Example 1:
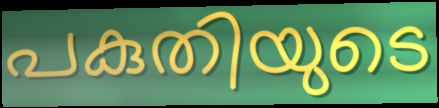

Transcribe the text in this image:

പകുതിയുടെ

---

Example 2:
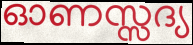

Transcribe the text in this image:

ഓണസ്സദ്യ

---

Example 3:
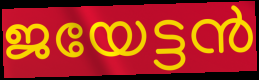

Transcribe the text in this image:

ജയേട്ടൻ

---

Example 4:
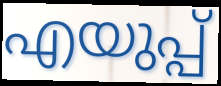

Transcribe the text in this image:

എയുപ്പ്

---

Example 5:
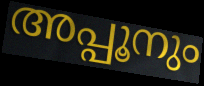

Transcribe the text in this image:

അപ്പൂനും